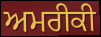
ਅਮਰੀਕੀ